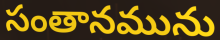
సంతానమును